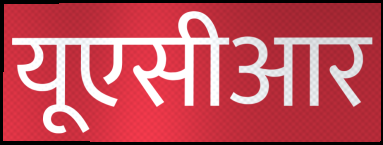
यूएसीआर